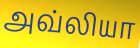
அவ்லியா